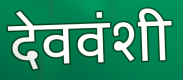
देववंशी